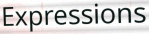
Expressions